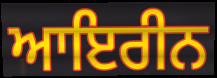
ਆਇਰੀਨ